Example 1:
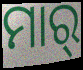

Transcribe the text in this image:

ମାର୍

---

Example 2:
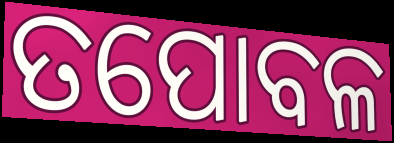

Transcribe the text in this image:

ତପୋବଳ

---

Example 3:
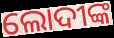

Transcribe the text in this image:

ଲୋଦୀଙ୍କ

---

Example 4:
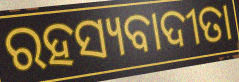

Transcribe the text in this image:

ରହସ୍ୟବାଦୀତା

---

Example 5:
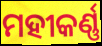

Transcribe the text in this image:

ମହୀକର୍ଣ୍ଣ